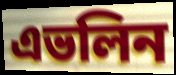
এভলিন